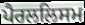
ਪੈਰਲਲਿਸਮ